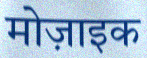
मोज़ाइक